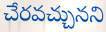
చేరవచ్చునని